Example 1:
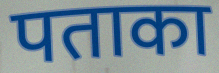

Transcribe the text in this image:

पताका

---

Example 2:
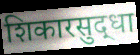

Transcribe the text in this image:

शिकारसुद्धा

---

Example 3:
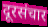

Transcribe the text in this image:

दूरसंचार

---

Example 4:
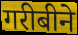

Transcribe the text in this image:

गरीबीने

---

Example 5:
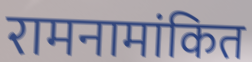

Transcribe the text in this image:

रामनामांकित